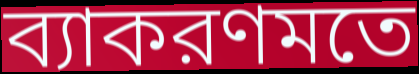
ব্যাকরণমতে